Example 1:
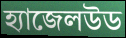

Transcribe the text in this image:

হ্যাজেলউড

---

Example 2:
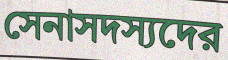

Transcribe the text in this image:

সেনাসদস্যদের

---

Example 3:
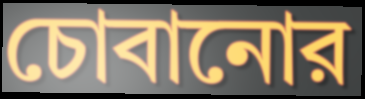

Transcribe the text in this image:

চোবানোর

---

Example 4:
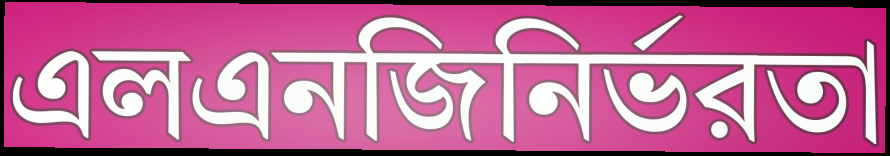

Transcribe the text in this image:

এলএনজিনির্ভরতা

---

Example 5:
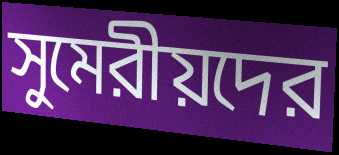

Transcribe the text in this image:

সুমেরীয়দের